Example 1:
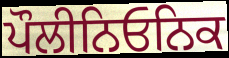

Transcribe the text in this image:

ਪੌਲੀਨਿਓਨਿਕ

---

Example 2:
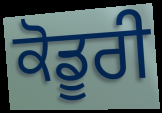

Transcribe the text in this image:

ਕੋਡੂਰੀ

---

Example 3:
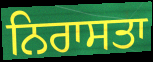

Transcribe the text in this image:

ਨਿਰਾਸਤਾ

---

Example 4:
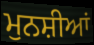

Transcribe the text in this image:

ਮੁਨਸ਼ੀਆਂ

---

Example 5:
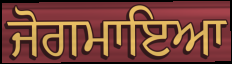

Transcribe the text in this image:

ਜੋਗਮਾਇਆ